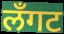
लँगट